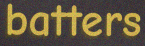
batters